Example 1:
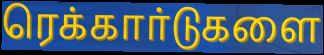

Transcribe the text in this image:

ரெக்கார்டுகளை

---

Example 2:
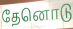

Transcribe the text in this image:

தேனொடு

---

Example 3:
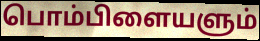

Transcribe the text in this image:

பொம்பிளையளும்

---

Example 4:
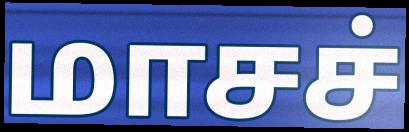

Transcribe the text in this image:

மாசச்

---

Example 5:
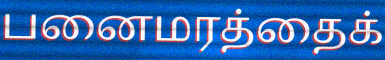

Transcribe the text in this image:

பனைமரத்தைக்